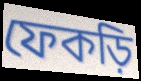
ফেকড়ি